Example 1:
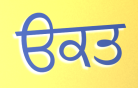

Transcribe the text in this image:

ੳਕਤ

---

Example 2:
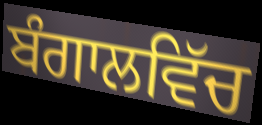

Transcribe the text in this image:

ਬੰਗਾਲਵਿੱਚ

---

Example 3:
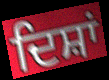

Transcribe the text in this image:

ਦਿਸ਼ਾਂ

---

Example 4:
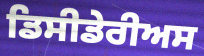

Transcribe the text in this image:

ਡਿਸੀਡੇਰੀਅਸ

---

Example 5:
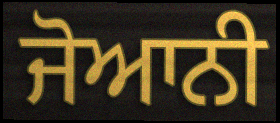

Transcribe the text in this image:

ਜੋਆਨੀ